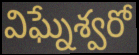
విఘ్నేశ్వరో